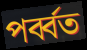
পৰ্ব্বত